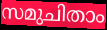
സമുചിതാം